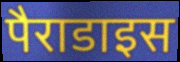
पैराडाइस